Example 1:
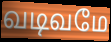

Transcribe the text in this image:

வடிவமே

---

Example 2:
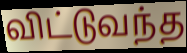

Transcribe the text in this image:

விட்டுவந்த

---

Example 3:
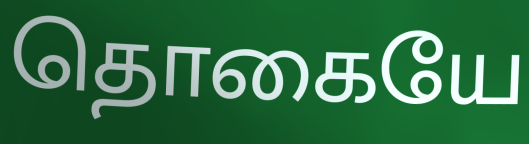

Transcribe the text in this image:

தொகையே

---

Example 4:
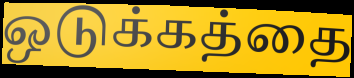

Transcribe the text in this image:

ஒடுக்கத்தை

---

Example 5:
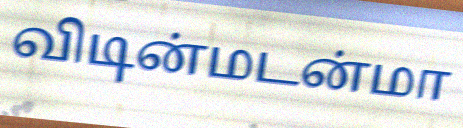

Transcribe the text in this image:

விடின்மடன்மா